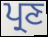
ਪ੍ਰਣ